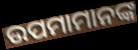
ଉପମାମାନଙ୍କ